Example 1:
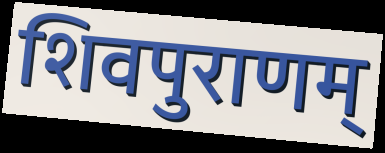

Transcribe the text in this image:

शिवपुराणम्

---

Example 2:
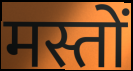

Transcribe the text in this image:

मस्तों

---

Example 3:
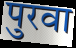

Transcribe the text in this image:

पुरवा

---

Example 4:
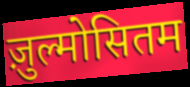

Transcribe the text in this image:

ज़ुल्मोसितम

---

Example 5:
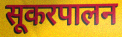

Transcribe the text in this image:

सूकरपालन